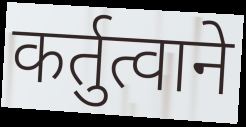
कर्तुत्वाने